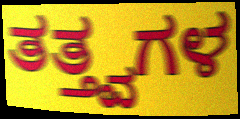
ತತ್ತ್ವಗಳ